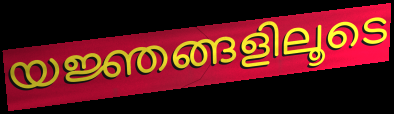
യജ്ഞങ്ങളിലൂടെ